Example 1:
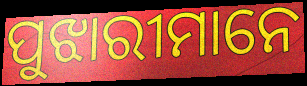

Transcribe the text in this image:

ପୁଝାରୀମାନେ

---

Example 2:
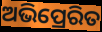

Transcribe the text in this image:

ଅଭିପ୍ରେରିତ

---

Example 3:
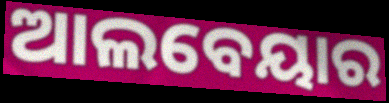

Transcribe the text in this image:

ଆଲବେୟାର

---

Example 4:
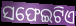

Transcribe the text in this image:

ସଫେଇଟିଏ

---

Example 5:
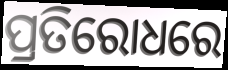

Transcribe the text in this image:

ପ୍ରତିରୋଧରେ